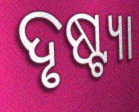
ଦୃଷ୍ଟ୍ୟା